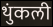
थुंकली